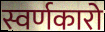
स्वर्णकारो